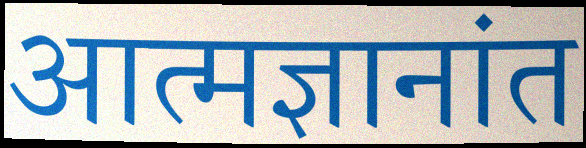
आत्मज्ञानांत